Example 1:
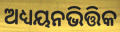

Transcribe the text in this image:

ଅଧ୍ୟୟନଭିତ୍ତିକ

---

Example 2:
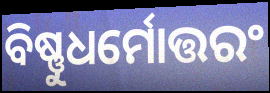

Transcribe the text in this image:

ବିଷ୍ଣୁଧର୍ମୋତ୍ତରଂ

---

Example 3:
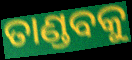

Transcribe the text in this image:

ତାଣ୍ଡବକୁ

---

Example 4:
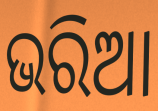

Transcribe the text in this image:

ଭରିଆ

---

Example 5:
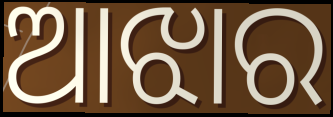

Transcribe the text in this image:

ଆଝାର